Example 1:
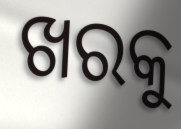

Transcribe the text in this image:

ଖରକୁ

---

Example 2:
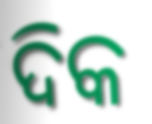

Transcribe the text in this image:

ଦିକ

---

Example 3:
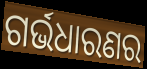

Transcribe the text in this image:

ଗର୍ଭଧାରଣର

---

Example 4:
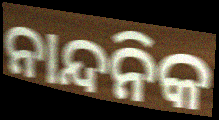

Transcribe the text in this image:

ନାନ୍ଦନିକ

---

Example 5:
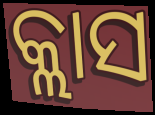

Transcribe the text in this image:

କ୍ଲାସ